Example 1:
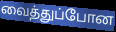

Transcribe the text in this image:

வைத்துப்போன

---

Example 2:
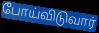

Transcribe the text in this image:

போய்விடுவார்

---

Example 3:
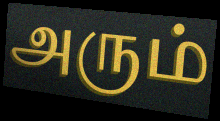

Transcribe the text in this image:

அரும்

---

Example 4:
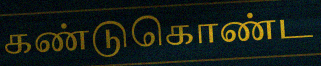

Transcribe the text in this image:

கண்டுகொண்ட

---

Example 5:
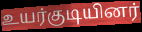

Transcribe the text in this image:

உயர்குடியினர்